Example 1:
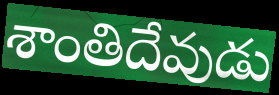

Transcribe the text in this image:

శాంతిదేవుడు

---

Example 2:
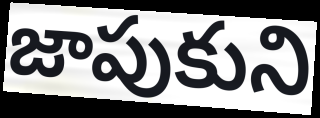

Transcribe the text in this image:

జాపుకుని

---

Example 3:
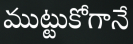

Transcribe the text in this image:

ముట్టుకోగానే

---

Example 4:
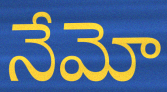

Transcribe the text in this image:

నేమో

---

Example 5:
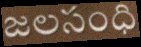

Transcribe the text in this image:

జలసంధి